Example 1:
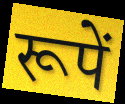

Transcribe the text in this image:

रूपें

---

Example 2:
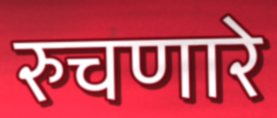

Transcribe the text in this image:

रुचणारे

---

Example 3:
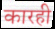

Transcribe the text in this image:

कारही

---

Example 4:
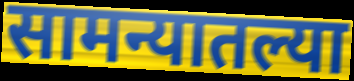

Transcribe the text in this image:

सामन्यातल्या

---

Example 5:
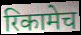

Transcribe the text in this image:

रिकामेच